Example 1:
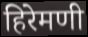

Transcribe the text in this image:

हिरेमणी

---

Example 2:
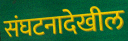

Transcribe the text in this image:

संघटनादेखील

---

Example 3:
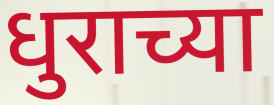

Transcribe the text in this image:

धुराच्या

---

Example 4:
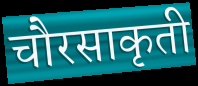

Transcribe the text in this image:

चौरसाकृती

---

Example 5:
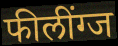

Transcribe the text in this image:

फीलींग्ज